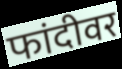
फांदीवर